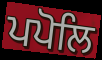
ਪਪੋਲਿ